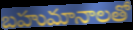
బహుమానాలతో